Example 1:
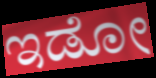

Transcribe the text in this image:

ಇಡೋ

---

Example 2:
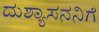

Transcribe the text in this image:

ದುಶ್ಯಾಸನನಿಗೆ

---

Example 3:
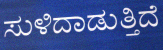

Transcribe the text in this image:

ಸುಳಿದಾಡುತ್ತಿದೆ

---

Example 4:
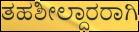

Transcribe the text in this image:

ತಹಶೀಲ್ದಾರರಾಗಿ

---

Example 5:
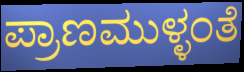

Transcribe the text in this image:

ಪ್ರಾಣಮುಳ್ಳಂತೆ